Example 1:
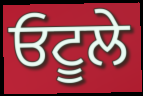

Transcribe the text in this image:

ਓਟੂਲੇ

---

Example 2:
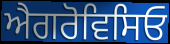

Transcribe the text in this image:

ਐਗਰੋਵਿਸਿਓ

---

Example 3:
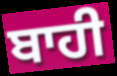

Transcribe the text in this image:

ਬਾਹੀ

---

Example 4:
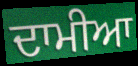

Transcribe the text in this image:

ਦਾਮੀਆ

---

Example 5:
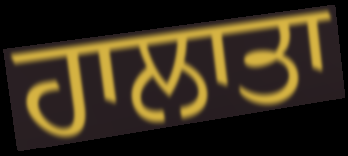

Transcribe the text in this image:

ਹਾਲਾਤਾ